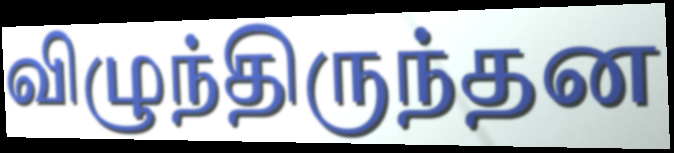
விழுந்திருந்தன